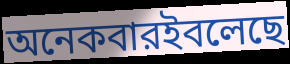
অনেকবারইবলেছে